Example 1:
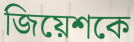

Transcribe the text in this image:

জিয়েশকে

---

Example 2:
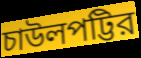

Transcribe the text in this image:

চাউলপট্টির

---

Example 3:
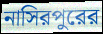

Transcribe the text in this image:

নাসিরপুরের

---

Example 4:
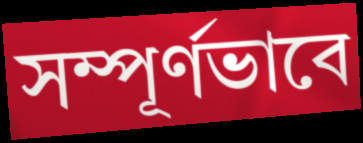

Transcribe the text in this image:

সম্পূর্ণভাবে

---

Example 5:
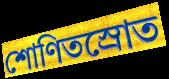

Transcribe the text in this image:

শোণিতস্রোত